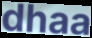
dhaa